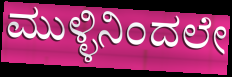
ಮುಳ್ಳಿನಿಂದಲೇ